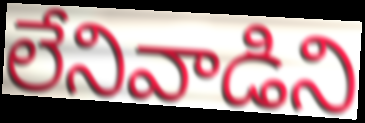
లేనివాడిని